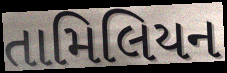
તામિલિયન